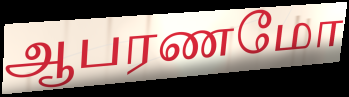
ஆபரணமோ